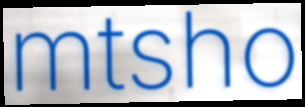
mtsho